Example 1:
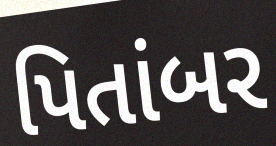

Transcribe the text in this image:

પિતાંબર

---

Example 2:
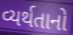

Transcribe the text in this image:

વ્યર્થતાનો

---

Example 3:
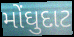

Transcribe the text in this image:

મોંઘુદાટ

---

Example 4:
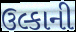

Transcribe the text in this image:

ઉલ્કાની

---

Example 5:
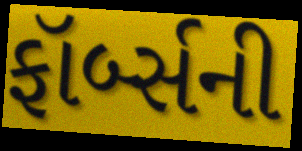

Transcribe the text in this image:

ફૉર્બ્સની